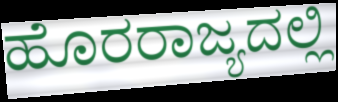
ಹೊರರಾಜ್ಯದಲ್ಲಿ